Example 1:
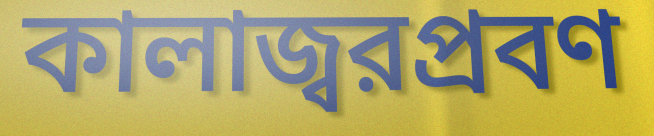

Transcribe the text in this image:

কালাজ্বরপ্রবণ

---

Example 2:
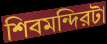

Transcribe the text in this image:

শিবমন্দিরটা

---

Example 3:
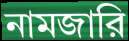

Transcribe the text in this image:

নামজারি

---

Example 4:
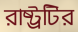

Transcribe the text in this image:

রাষ্ট্রটির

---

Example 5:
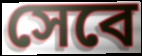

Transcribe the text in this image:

সেবে